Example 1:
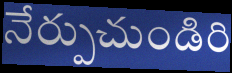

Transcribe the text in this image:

నేర్పుచుండిరి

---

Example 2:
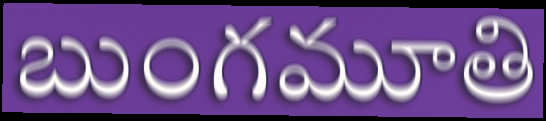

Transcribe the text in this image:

బుంగమూతి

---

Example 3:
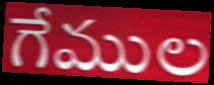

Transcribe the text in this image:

గేముల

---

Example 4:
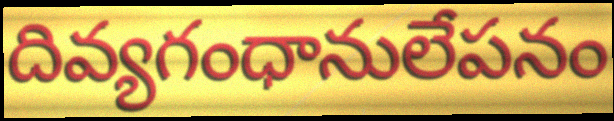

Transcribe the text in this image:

దివ్యగంధానులేపనం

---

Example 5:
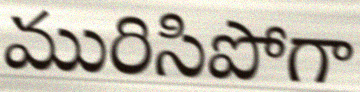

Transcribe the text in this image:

మురిసిపోగా